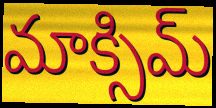
మాక్సిమ్